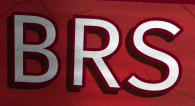
BRS